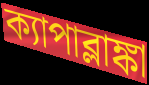
ক্যাপাব্লাঙ্কা